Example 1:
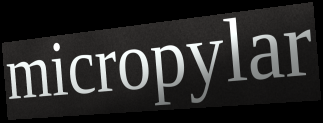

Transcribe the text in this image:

micropylar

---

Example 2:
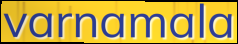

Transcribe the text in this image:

varnamala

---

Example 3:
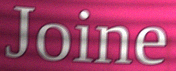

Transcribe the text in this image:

Joine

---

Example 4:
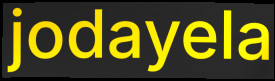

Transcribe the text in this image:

jodayela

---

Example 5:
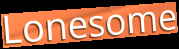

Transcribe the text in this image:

Lonesome